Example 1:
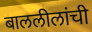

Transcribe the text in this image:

बाललीलांची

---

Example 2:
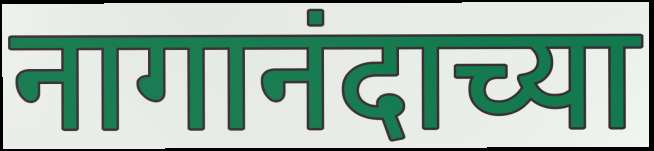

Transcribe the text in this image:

नागानंदाच्या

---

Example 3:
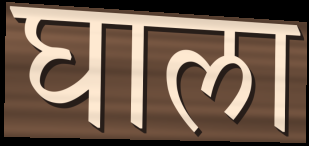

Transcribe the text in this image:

घाला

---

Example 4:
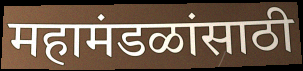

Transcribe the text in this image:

महामंडळांसाठी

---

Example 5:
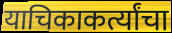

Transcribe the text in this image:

याचिकाकर्त्यांचा